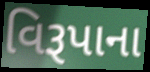
વિરૂપાના